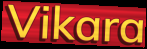
Vikara